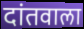
दांतवाला